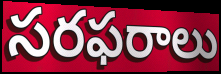
సరఫరాలు